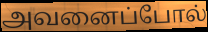
அவனைப்போல்